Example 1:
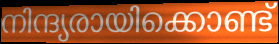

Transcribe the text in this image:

നിന്ദ്യരായിക്കൊണ്ട്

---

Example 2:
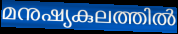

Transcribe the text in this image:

മനുഷ്യകുലത്തിൽ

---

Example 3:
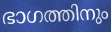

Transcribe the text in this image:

ഭാഗത്തിനും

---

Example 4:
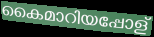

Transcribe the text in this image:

കൈമാറിയപ്പോള്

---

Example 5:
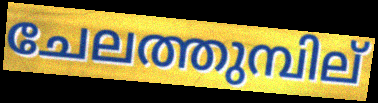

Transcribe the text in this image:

ചേലത്തുമ്പില്